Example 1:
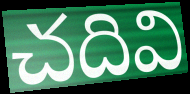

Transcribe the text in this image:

చదివి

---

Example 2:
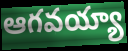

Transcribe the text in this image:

ఆగవయ్యా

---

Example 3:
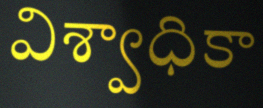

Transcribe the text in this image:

విశ్వాధికా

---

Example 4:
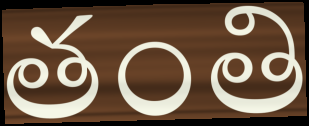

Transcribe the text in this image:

తంతి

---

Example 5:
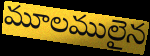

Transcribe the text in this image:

మూలములైన